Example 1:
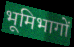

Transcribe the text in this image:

भूमिभागों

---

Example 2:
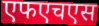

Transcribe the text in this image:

एफएचएस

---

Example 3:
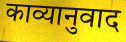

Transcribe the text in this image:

काव्यानुवाद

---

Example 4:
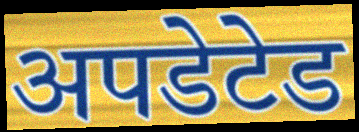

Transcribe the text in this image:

अपडेटेड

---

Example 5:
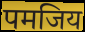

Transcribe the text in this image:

पमजिय